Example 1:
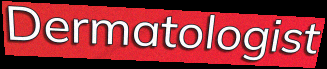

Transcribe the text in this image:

Dermatologist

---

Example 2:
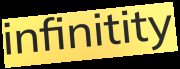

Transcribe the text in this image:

infinitity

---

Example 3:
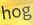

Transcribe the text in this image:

hog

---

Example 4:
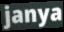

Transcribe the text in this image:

janya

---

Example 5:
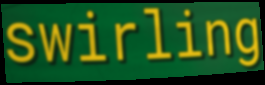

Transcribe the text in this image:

swirling